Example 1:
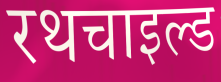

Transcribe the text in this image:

रथचाइल्ड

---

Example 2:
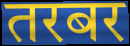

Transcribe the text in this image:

तरबर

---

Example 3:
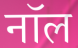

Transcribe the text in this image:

नॉल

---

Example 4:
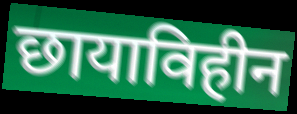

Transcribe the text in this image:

छायाविहीन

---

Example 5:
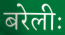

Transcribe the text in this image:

बरेलीः